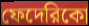
ফেদেরিকো